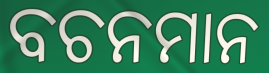
ବଚନମାନ